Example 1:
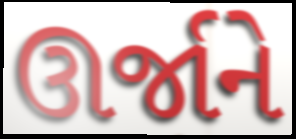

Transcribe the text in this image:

ઊર્જાને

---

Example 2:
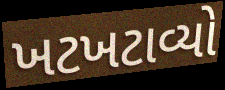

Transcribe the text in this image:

ખટખટાવ્યો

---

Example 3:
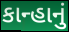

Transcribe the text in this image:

કાન્હાનું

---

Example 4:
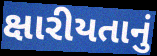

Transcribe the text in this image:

ક્ષારીયતાનું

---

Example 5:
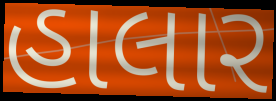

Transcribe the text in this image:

હાલાર